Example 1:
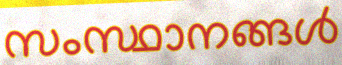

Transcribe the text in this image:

സംസ്ഥാനങ്ങൾ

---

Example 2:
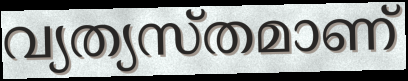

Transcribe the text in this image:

വ്യത്യസ്തമാണ്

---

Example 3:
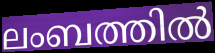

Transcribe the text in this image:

ലംബത്തിൽ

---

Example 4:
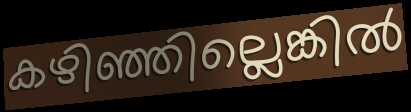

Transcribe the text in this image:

കഴിഞ്ഞില്ലെങ്കിൽ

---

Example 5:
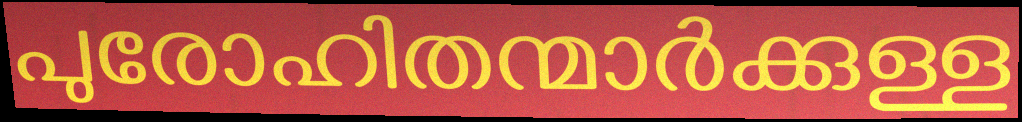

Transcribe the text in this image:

പുരോഹിതന്മാർക്കുള്ള